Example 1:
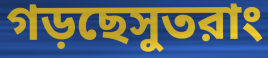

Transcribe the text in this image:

গড়ছেসুতরাং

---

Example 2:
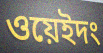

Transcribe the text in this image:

ওয়েইদং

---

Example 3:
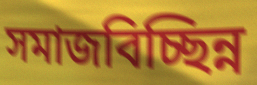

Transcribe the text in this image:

সমাজবিচ্ছিন্ন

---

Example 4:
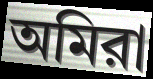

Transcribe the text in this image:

অমিরা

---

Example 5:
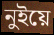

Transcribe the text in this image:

নুইয়ে